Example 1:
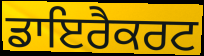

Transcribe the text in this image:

ਡਾਇਰੈਕਰਟ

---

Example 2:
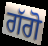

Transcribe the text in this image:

ਗੱਗੋ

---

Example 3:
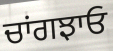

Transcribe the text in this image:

ਚਾਂਗਝਾਓ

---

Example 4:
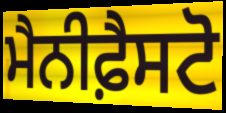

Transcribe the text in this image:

ਮੈਨੀਫ਼ੈਸਟੋ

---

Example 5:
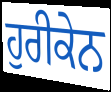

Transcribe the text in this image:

ਹੁਰੀਕੇਨ